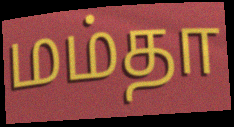
மம்தா